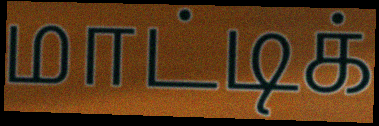
மாட்டிக்